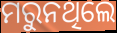
ମରୁନଥିଲେ